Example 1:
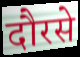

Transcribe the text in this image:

दौरसे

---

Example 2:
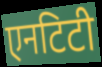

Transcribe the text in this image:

एनटिटी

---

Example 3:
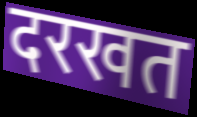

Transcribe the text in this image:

दरखत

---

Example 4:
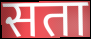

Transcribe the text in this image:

सता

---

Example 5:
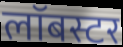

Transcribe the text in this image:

लॉबस्टर